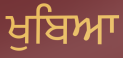
ਖੁਬਿਆ